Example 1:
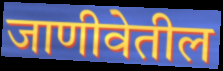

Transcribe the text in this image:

जाणीवेतील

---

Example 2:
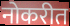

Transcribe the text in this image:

नोकरीत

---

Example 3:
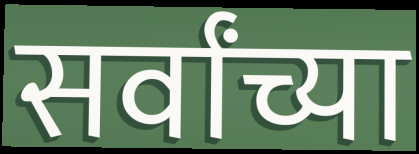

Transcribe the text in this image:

सर्वांच्या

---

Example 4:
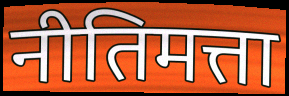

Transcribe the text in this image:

नीतिमत्ता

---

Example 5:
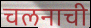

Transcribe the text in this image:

चलनाची